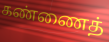
கண்ணைத்